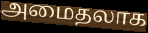
அமைதலாக